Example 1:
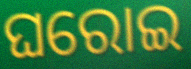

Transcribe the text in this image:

ଘରୋଇ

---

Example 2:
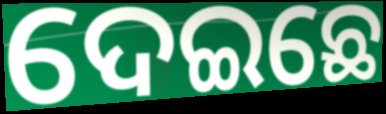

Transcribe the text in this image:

ଦେଇଛେ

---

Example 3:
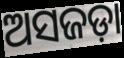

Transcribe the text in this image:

ଅସଜଡ଼ା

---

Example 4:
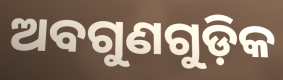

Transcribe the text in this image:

ଅବଗୁଣଗୁଡ଼ିକ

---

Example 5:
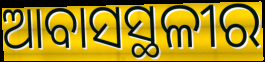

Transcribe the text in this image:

ଆବାସସ୍ଥଳୀର